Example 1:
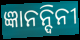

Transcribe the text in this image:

ଜ୍ଞାନନ୍ଦିନୀ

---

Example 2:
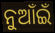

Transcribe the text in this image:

ନୁଆଁଇଁ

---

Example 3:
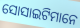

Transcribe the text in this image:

ସୋସାଇଟିମାନେ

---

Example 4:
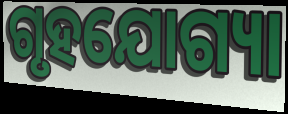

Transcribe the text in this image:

ଗୃହଯୋଗ୍ୟା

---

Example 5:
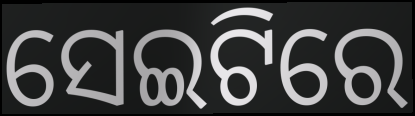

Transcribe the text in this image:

ସେଇଟିରେ